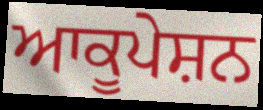
ਆਕੂਪੇਸ਼ਨ